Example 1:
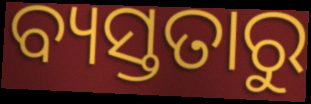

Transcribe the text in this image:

ବ୍ୟସ୍ତତାରୁ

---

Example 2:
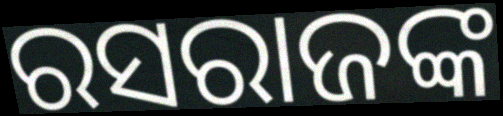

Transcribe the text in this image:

ରସରାଜଙ୍କ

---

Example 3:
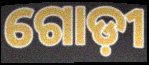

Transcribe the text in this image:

ଗୋଡ଼ୀ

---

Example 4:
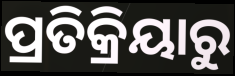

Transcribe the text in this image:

ପ୍ରତିକ୍ରିୟାରୁ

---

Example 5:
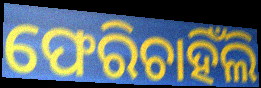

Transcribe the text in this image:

ଫେରିଚାହିଁଲି